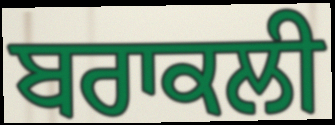
ਬਰਾਕਲੀ